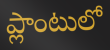
ప్లాంటులో